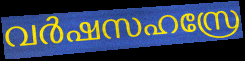
വർഷസഹസ്രേ